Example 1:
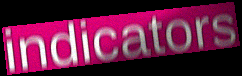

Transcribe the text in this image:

indicators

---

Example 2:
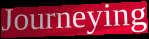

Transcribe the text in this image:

Journeying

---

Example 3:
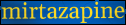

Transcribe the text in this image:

mirtazapine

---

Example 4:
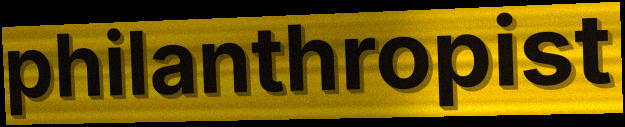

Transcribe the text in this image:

philanthropist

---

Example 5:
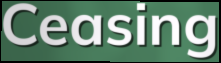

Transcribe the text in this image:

Ceasing